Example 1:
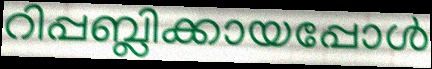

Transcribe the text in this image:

റിപ്പബ്ലിക്കായപ്പോൾ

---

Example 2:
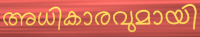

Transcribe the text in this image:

അധികാരവുമായി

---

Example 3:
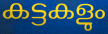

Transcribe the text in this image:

കട്ടകളും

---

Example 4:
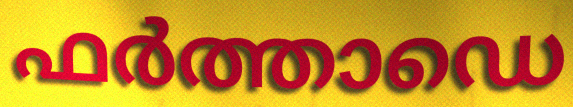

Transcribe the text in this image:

ഫർത്താഡെ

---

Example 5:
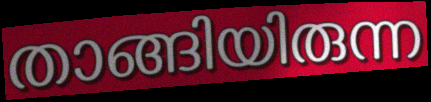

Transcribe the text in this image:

താങ്ങിയിരുന്ന